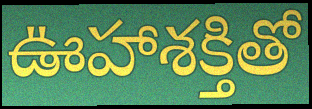
ఊహాశక్తితో